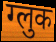
ग्लुक